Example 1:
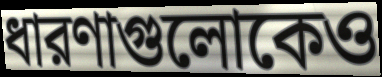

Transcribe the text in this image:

ধারণাগুলোকেও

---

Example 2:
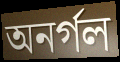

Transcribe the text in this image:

অনর্গল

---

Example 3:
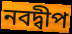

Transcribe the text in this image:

নবদ্বীপ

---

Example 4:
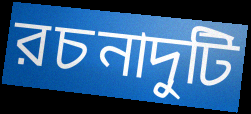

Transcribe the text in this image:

রচনাদুটি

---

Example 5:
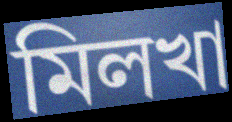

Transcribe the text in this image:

মিলখা